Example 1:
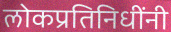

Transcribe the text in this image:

लोकप्रतिनिधींनी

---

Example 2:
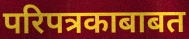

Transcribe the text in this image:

परिपत्रकाबाबत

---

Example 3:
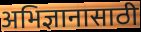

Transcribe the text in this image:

अभिज्ञानासाठी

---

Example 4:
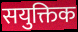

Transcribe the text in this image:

सयुक्तिक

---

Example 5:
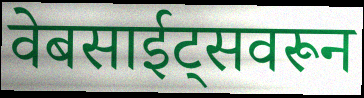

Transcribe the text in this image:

वेबसाईट्सवरून